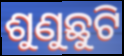
ଶୁଣୁଛୁଟି